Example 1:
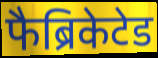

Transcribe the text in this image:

फैब्रिकेटेड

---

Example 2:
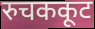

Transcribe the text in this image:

रुचककूट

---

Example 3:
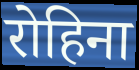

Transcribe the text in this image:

रोहिना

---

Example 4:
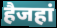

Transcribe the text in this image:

हैजहां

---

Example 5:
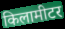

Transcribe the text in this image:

किलामीटर